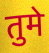
तुमे